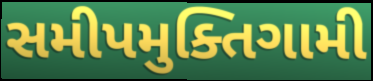
સમીપમુક્તિગામી